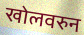
खोलवरुन